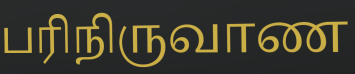
பரிநிருவாண